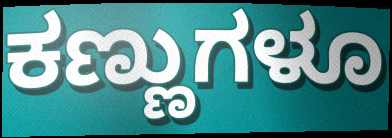
ಕಣ್ಣುಗಳೂ